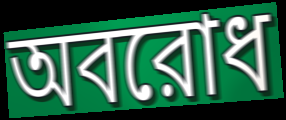
অবরোধ